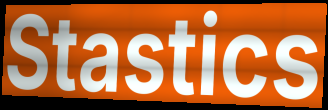
Stastics